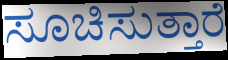
ಸೂಚಿಸುತ್ತಾರೆ